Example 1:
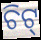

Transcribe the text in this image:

ଚିଟ୍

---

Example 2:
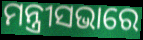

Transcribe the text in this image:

ମନ୍ତ୍ରୀସଭାରେ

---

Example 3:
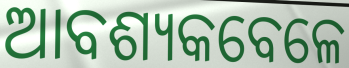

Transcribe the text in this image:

ଆବଶ୍ୟକବେଳେ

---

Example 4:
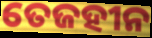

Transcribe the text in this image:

ତେଜହୀନ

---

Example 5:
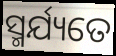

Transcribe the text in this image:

ସ୍ମର୍ଯ୍ୟତେ